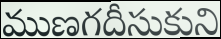
ముణగదీసుకుని